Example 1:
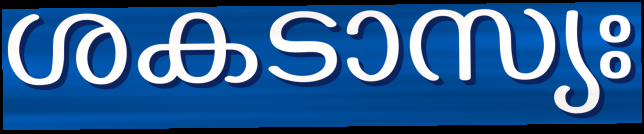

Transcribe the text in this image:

ശകടാസ്യഃ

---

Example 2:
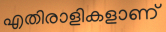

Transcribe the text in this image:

എതിരാളികളാണ്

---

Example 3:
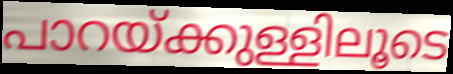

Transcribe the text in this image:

പാറയ്ക്കുള്ളിലൂടെ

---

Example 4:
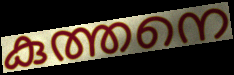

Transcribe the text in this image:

കുത്തനെ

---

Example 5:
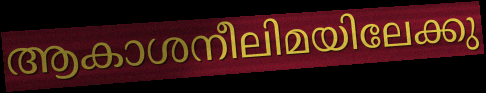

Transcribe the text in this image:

ആകാശനീലിമയിലേക്കു